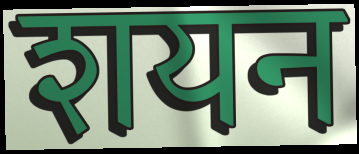
शयन